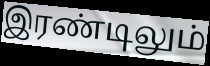
இரண்டிலும்